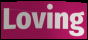
Loving